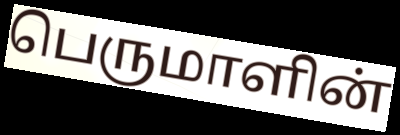
பெருமாளின்